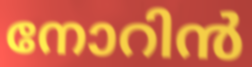
നോറിൻ